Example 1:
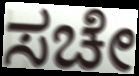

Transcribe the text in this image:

ಸಚೇ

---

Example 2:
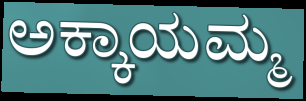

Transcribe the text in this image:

ಅಕ್ಕಾಯಮ್ಮ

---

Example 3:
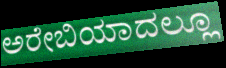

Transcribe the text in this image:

ಅರೇಬಿಯಾದಲ್ಲೂ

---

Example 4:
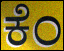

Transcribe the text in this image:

ಕೆಂ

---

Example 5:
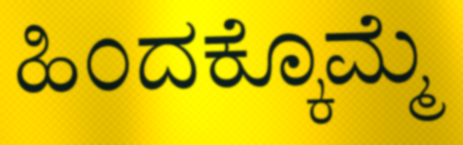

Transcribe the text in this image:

ಹಿಂದಕ್ಕೊಮ್ಮೆ